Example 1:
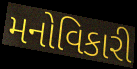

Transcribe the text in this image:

મનોવિકારી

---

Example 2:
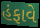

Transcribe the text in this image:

હંફાવે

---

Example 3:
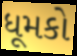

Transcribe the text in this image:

ધૂમકો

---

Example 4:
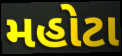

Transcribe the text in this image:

મહોટા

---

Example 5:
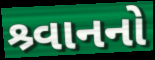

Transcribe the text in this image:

શ્ર્વાનનો